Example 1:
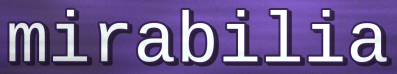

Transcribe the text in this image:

mirabilia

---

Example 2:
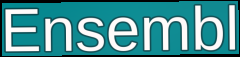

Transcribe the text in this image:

Ensembl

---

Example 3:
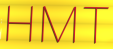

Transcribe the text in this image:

HMT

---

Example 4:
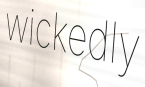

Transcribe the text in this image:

wickedly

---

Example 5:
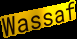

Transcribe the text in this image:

Wassaf